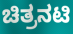
ಚಿತ್ರನಟಿ